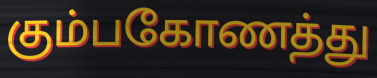
கும்பகோணத்து